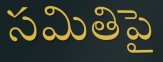
సమితిపై